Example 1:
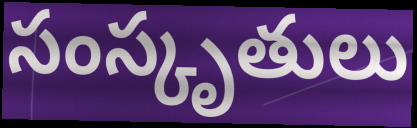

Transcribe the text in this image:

సంస్కృతులు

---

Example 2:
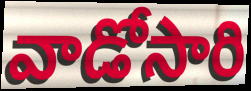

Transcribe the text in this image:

వాడోసారి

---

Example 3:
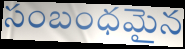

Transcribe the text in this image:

సంబంధమైన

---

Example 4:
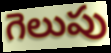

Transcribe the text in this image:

గెలుపు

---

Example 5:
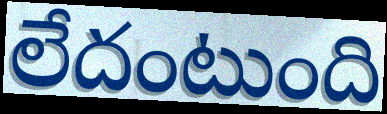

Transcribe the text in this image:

లేదంటుంది